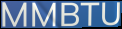
MMBTU